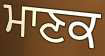
ਮਾਣਕ